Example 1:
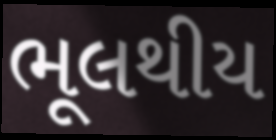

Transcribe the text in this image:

ભૂલથીય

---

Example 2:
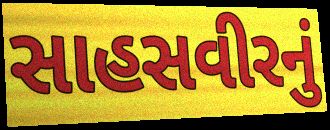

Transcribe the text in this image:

સાહસવીરનું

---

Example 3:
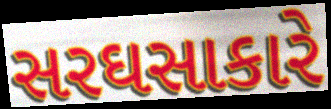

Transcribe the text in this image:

સરઘસાકારે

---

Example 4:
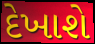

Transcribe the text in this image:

દેખાશે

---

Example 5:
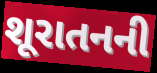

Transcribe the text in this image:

શૂરાતનની